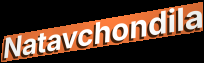
Natavchondila